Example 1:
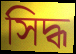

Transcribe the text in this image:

সিদ্ধ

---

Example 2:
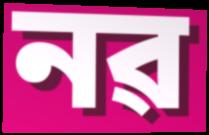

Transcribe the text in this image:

নৱ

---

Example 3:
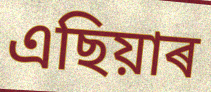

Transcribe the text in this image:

এছিয়াৰ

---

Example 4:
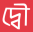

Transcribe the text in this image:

দ্বৌ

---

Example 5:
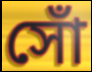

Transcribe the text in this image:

সোঁ